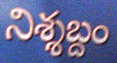
నిశ్శబ్దం